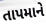
તાપમાને